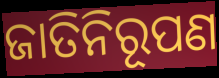
ଜାତିନିରୂପଣ